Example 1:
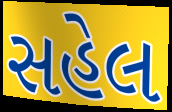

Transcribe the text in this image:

સહેલ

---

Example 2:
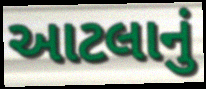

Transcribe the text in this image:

આટલાનું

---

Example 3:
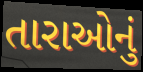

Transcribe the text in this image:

તારાઓનું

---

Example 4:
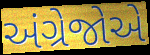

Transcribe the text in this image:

અંગ્રેજોએ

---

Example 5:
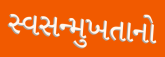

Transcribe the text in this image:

સ્વસન્મુખતાનો